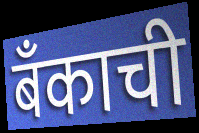
बँकाची